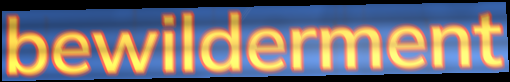
bewilderment